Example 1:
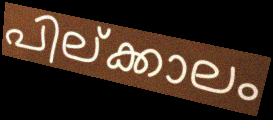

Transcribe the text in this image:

പില്ക്കാലം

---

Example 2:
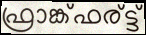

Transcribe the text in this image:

ഫ്രാങ്ക്ഫര്ട്ട്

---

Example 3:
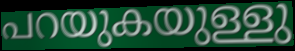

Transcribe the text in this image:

പറയുകയുള്ളു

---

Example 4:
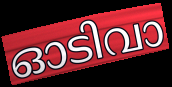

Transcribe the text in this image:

ഓടിവാ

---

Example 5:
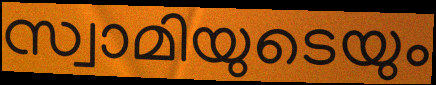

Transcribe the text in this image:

സ്വാമിയുടെയും